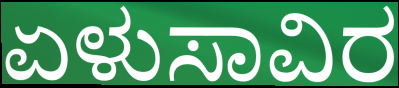
ಏಳುಸಾವಿರ